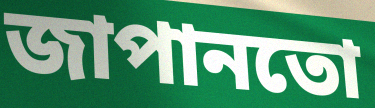
জাপানতো